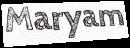
Maryam